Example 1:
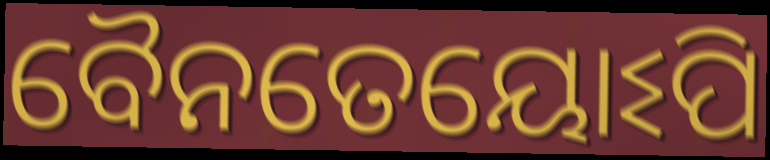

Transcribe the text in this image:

ବୈନତେୟୋଽପି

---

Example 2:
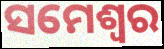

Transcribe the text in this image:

ସମେଶ୍ୱର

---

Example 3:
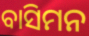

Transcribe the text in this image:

ବାସିମନ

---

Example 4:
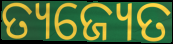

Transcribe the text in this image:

ତ୍ୟଜ୍ୟେତ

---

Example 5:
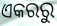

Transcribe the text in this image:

ଏକରରୁ